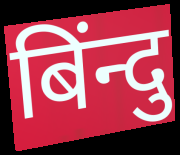
बिंन्दु